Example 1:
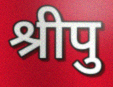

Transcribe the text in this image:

श्रीपु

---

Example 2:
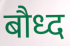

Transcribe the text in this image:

बौध्द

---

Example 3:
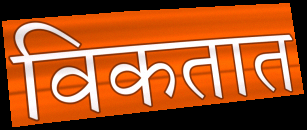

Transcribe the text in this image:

विकतात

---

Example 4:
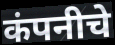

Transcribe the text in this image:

कंपनीचे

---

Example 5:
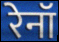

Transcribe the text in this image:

रेनॉ